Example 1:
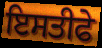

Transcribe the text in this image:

ਇਸਤੀਫੇ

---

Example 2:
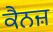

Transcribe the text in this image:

ਕੈਨਜ਼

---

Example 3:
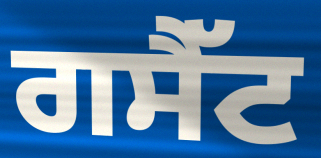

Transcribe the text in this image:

ਗਸੈੱਟ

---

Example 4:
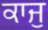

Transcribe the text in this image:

ਕਾਜੁ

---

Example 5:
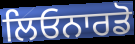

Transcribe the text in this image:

ਲਿਓਨਾਰਡੋ